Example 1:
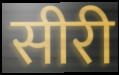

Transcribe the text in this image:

सीरी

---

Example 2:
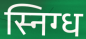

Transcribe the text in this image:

स्निग्ध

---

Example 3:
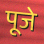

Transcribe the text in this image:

पूजे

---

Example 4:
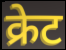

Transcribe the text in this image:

क्रेट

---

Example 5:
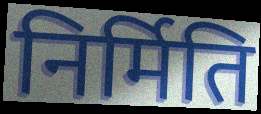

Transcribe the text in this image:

निर्मिति